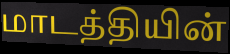
மாடத்தியின்